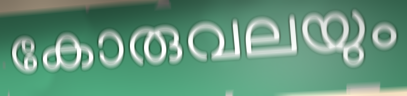
കോരുവലയും